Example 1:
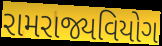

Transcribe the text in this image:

રામરાજ્યવિયોગ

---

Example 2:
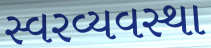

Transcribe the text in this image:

સ્વરવ્યવસ્થા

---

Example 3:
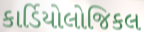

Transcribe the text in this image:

કાર્ડિયોલોજિકલ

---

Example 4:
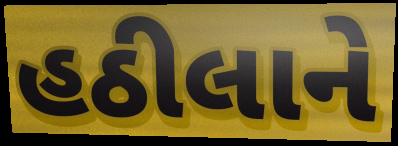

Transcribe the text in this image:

હઠીલાને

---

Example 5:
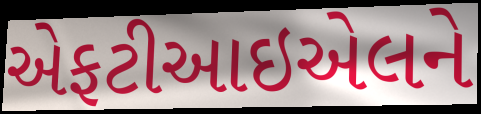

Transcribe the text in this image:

એફટીઆઇએલને